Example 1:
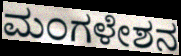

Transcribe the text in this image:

ಮಂಗಳೇಶನ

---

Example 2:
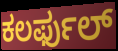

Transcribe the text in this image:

ಕಲರ್ಫುಲ್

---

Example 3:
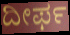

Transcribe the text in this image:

ದೀರ್ಫ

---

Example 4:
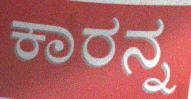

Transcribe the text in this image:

ಕಾರನ್ನ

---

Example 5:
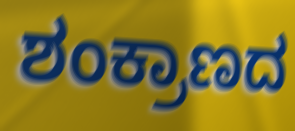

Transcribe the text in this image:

ಶಂಕ್ರಾಣದ